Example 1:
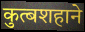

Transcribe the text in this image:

कुत्बशहाने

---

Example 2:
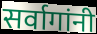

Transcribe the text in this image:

सर्वागांनी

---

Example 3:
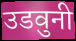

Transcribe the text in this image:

उडवुनी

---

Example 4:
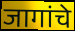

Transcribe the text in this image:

जागांचे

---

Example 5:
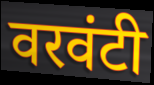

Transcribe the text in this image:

वरवंटी